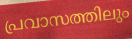
പ്രവാസത്തിലും